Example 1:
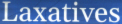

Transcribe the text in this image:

Laxatives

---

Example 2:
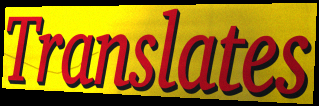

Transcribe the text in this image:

Translates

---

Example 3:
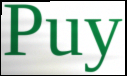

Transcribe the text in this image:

Puy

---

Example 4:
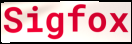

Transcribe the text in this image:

Sigfox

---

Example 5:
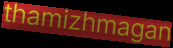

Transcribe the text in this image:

thamizhmagan